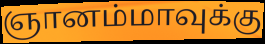
ஞானம்மாவுக்கு